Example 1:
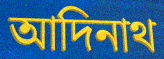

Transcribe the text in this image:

আদিনাথ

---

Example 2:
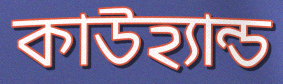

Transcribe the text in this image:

কাউহ্যান্ড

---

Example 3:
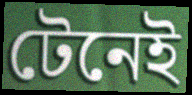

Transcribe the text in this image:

টেনেই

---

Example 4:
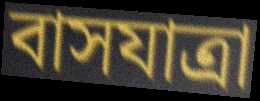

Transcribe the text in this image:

বাসযাত্রা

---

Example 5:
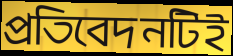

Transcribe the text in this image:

প্রতিবেদনটিই